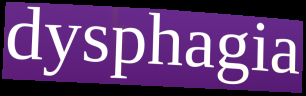
dysphagia